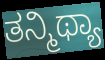
ತನ್ಮಿಥ್ಯಾ